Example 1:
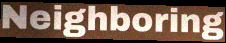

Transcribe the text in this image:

Neighboring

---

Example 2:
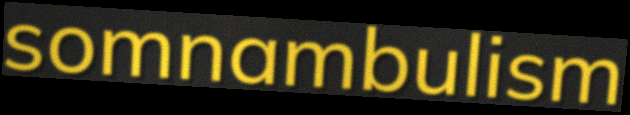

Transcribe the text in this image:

somnambulism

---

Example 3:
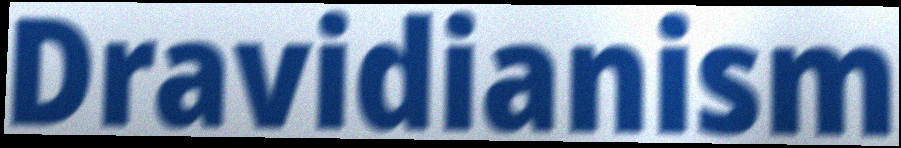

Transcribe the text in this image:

Dravidianism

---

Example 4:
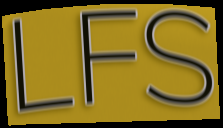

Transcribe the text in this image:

LFS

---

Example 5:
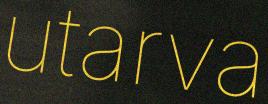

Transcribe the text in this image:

utarva